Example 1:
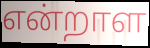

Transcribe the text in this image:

என்றாள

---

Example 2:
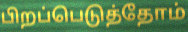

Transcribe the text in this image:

பிறப்பெடுத்தோம்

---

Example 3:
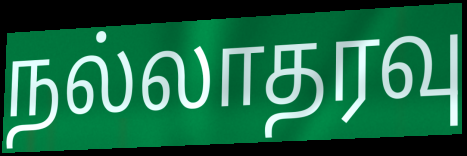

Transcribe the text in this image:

நல்லாதரவு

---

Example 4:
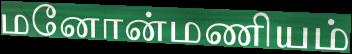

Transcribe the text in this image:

மனோன்மணியம்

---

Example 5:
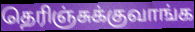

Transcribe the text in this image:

தெரிஞ்சுக்குவாங்க